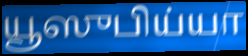
யூஸுபிய்யா